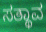
ಸತ್ಥಾವ